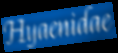
Hyaenidae